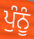
ਪੁੰਨੂੰ